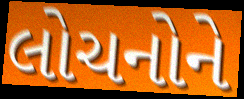
લોચનોને